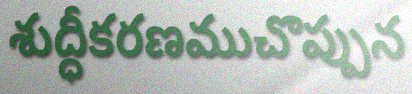
శుద్ధీకరణముచొప్పున